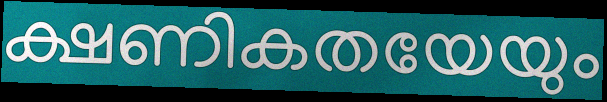
ക്ഷണികതയേയും